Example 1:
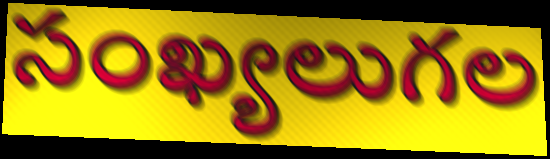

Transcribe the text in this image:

సంఖ్యలుగల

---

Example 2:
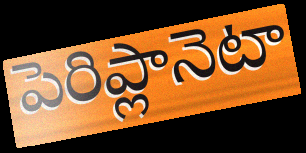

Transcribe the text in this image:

పెరిప్లానెటా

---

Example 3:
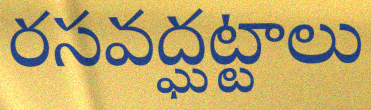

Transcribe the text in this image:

రసవద్ఘట్టాలు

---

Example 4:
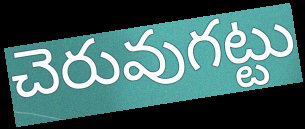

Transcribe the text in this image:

చెరువుగట్టు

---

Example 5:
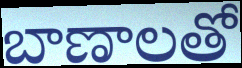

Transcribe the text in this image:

బాణాలతో